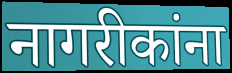
नागरीकांना